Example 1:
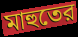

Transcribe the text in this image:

মাহুতের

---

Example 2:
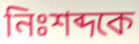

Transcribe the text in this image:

নিঃশব্দকে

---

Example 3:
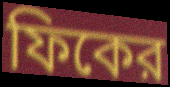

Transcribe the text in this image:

ফিকের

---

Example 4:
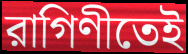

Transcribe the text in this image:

রাগিণীতেই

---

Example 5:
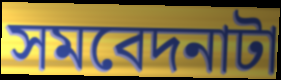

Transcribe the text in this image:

সমবেদনাটা